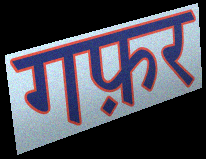
गफ़र